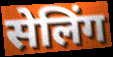
सेलिंग